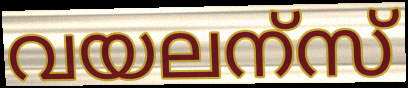
വയലന്സ്